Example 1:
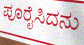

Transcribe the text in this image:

ಪೂರೈಸಿದನು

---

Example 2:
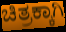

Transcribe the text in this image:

ಚಿತ್ರಕ್ಕಾಗಿ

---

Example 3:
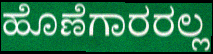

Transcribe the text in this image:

ಹೊಣೆಗಾರರಲ್ಲ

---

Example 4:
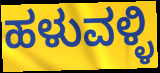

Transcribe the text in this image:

ಹಳುವಳ್ಳಿ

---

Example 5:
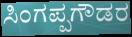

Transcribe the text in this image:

ಸಿಂಗಪ್ಪಗೌಡರ